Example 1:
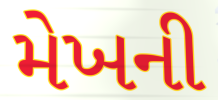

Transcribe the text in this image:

મેખની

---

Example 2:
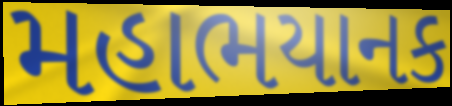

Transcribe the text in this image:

મહાભયાનક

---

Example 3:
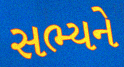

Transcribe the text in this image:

સભ્યને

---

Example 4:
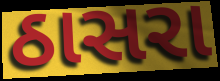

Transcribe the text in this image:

ઠાસરા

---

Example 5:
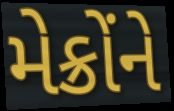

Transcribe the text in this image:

મેક્રોંને